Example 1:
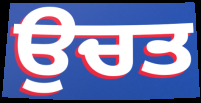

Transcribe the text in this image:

ਉਚਤ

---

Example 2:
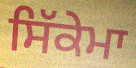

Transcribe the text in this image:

ਸਿੱਕੇਮਾ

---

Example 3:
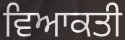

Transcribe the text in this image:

ਵਿਆਕਤੀ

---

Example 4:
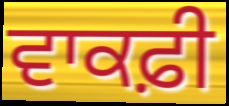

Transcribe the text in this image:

ਵਾਕਫ਼ੀ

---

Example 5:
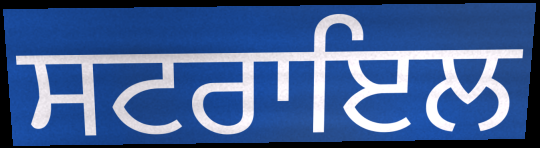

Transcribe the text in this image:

ਸਟਰਾਇਲ